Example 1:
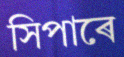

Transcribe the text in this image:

সিপাৰে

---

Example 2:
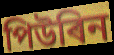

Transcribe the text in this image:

পিউৰিন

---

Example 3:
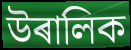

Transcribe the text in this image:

উৰালিক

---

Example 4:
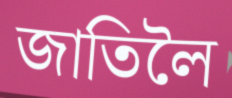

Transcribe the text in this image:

জাতিলৈ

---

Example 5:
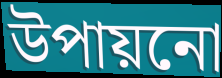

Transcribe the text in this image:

উপায়নো